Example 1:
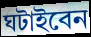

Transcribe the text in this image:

ঘটাইবেন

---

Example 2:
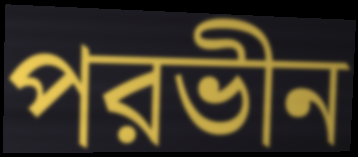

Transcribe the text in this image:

পরভীন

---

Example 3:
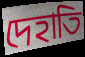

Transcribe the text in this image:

দেহাতি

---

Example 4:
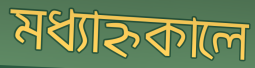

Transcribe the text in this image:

মধ্যাহ্নকালে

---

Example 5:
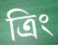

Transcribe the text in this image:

ত্রিং